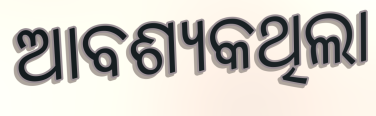
ଆବଶ୍ୟକଥିଲା